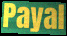
Payal